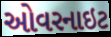
ઓવરનાઇટ